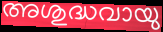
അശുദ്ധവായു